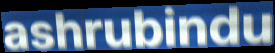
ashrubindu